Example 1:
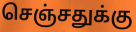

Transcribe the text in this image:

செஞ்சதுக்கு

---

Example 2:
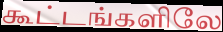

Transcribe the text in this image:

கூட்டங்களிலே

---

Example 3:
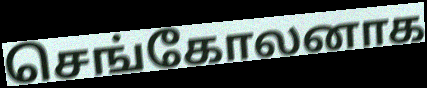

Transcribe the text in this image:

செங்கோலனாக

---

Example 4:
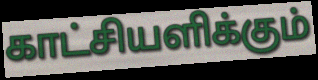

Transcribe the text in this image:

காட்சியளிக்கும்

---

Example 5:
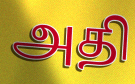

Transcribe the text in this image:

அதி